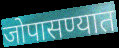
जोपासण्यात